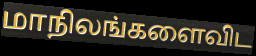
மாநிலங்களைவிட